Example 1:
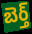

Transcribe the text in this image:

బెర్త్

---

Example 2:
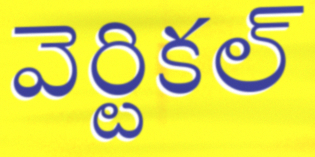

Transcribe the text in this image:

వెర్టికల్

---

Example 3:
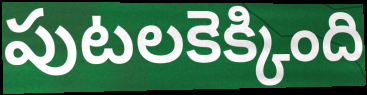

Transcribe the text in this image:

పుటలకెక్కింది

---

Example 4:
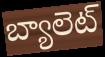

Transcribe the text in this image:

బ్యాలెట్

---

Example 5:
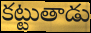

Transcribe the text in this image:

కట్టుతాడు